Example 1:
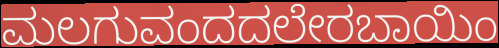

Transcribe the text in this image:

ಮಲಗುವಂದದಲೇರಬಾಯಿಂ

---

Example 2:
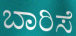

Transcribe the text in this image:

ಬಾರಿಸೆ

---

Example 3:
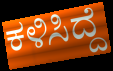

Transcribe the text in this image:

ಕಳಿಸಿದ್ದೆ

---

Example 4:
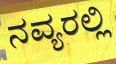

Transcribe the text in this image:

ನವ್ಯರಲ್ಲಿ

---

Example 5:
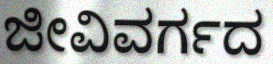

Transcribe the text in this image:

ಜೀವಿವರ್ಗದ